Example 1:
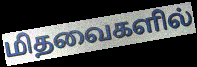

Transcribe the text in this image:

மிதவைகளில்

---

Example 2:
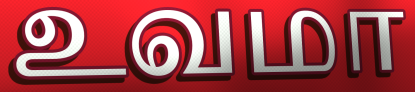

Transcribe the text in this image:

உவமா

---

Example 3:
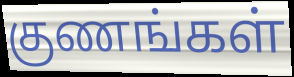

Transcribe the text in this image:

குணங்கள்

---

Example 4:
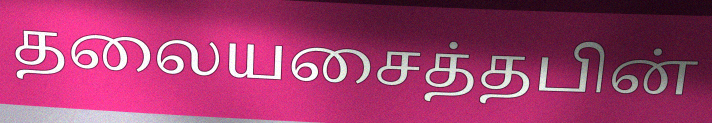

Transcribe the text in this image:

தலையசைத்தபின்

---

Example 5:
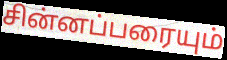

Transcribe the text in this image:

சின்னப்பரையும்